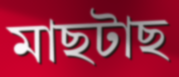
মাছটাছ